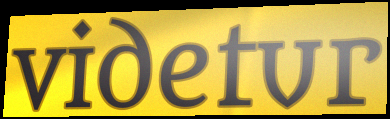
videtur